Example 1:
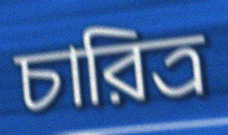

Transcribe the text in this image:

চারিত্র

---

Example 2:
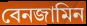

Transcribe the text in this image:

বেনজামিন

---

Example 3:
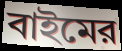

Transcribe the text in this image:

বাইমের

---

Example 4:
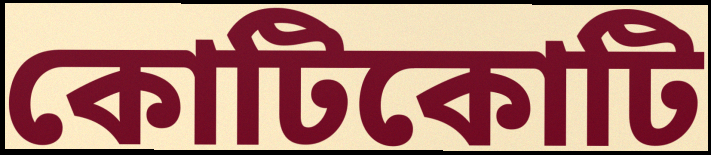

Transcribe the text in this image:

কোটিকোটি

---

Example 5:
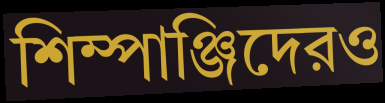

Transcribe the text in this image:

শিম্পাঞ্জিদেরও